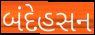
બંદેહસન